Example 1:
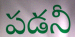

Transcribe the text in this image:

పడనీ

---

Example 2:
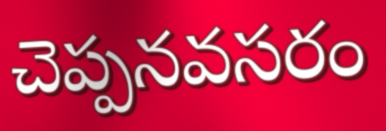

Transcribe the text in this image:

చెప్పనవసరం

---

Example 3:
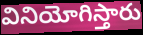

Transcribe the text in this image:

వినియోగిస్తారు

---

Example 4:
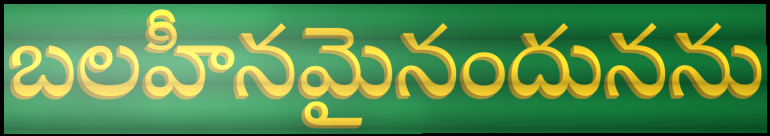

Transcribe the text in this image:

బలహీనమైనందునను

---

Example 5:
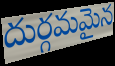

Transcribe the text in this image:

దుర్గమమైన